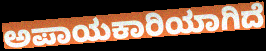
ಅಪಾಯಕಾರಿಯಾಗಿದೆ